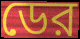
ডের